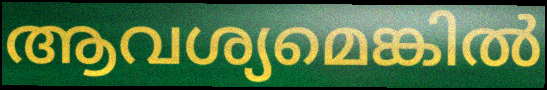
ആവശ്യമെങ്കിൽ